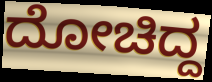
ದೋಚಿದ್ದ